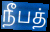
நீபத்